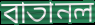
বাতানল